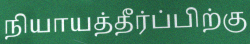
நியாயத்தீர்ப்பிற்கு